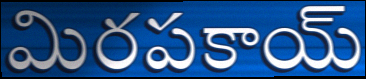
మిరపకాయ్